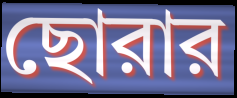
ছোরার